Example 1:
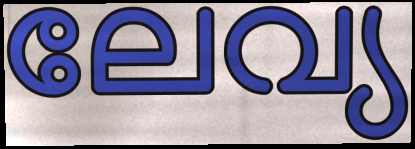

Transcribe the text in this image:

ലേവ്യ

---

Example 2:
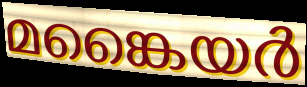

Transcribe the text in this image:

മങ്കൈയർ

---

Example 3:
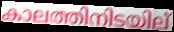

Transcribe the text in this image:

കാലത്തിനിടയില്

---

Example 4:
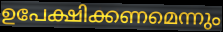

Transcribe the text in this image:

ഉപേക്ഷിക്കണമെന്നും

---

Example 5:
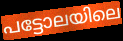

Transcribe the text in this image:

പട്ടോലയിലെ